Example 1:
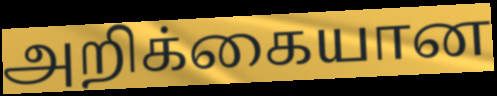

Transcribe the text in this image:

அறிக்கையான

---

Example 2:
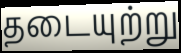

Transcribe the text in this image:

தடையுற்று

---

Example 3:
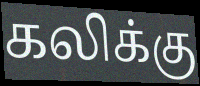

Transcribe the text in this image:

கலிக்கு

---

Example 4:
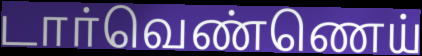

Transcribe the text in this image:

டார்வெண்ணெய்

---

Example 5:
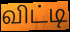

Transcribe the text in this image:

விட்டி